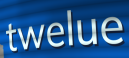
twelue